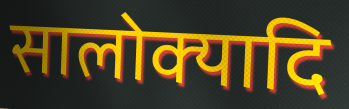
सालोक्यादि